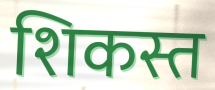
शिकस्त